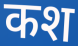
कश